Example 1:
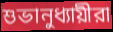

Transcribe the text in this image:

শুভানুধ্যায়ীরা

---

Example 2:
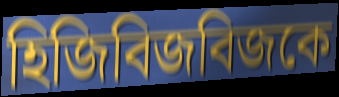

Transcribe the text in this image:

হিজিবিজবিজকে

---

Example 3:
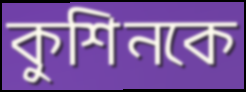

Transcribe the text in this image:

কুশিনকে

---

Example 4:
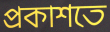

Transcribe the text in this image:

প্রকাশতে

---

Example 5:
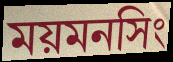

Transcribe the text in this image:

ময়মনসিং